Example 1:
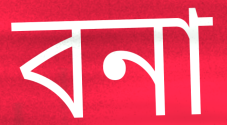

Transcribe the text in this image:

বনা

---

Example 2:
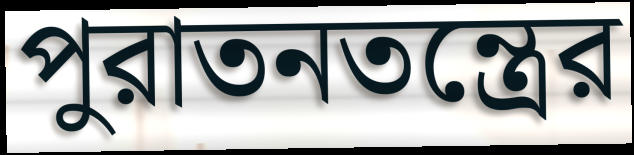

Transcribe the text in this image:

পুরাতনতন্ত্রের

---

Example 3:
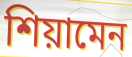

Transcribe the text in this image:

শিয়ামেন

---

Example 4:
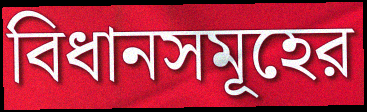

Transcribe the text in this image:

বিধানসমূহের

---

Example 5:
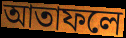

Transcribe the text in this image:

আতাফলে